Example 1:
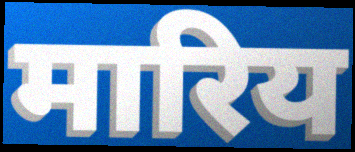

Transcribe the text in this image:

मारिय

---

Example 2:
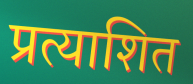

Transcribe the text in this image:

प्रत्याशित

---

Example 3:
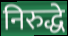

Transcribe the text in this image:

निरुद्धे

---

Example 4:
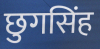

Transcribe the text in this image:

छुगसिंह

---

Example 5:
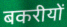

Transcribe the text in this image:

बकरीयों